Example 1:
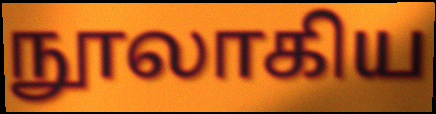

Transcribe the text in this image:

நூலாகிய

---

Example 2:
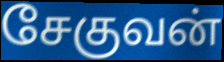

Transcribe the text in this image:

சேகுவன்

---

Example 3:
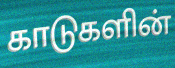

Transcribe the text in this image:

காடுகளின்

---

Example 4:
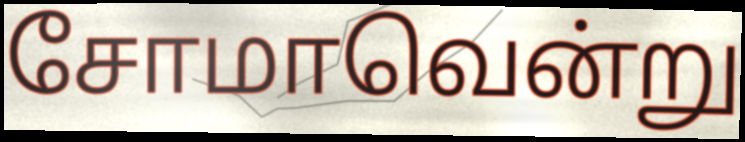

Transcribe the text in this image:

சோமாவென்று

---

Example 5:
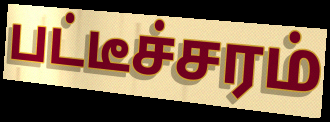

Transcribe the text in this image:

பட்டீச்சரம்